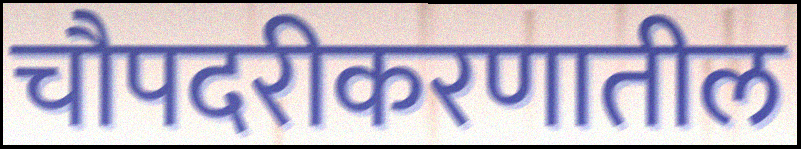
चौपदरीकरणातील